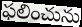
ఫలించును